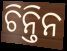
ଚିନ୍ତିନ